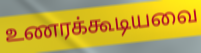
உணரக்கூடியவை